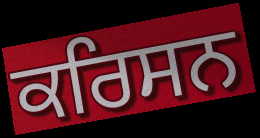
ਕਰਿਸਨ